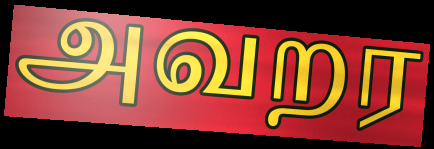
அவறர